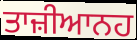
ਤਾਜ਼ੀਆਨਹ